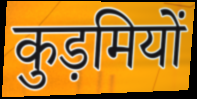
कुड़मियों